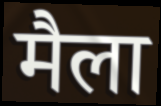
मैला